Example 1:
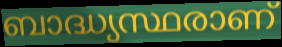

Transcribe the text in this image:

ബാദ്ധ്യസ്ഥരാണ്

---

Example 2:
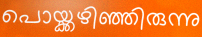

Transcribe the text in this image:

പൊയ്ക്കഴിഞ്ഞിരുന്നു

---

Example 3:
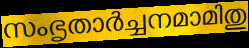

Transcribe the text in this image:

സംഭൃതാർച്ചനമാമിതു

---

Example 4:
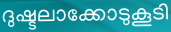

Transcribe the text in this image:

ദുഷ്ടലാക്കോടുകൂടി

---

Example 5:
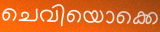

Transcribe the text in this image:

ചെവിയൊക്കെ